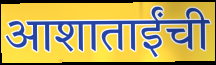
आशाताईंची